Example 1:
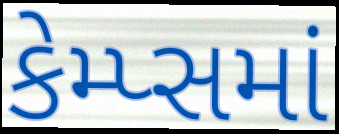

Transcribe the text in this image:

કેમ્પ્સમાં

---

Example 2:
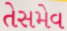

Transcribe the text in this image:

તેસમેવ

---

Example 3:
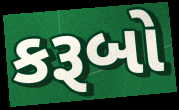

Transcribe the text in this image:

કરૂબો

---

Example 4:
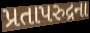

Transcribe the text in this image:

પ્રતાપરુદ્રના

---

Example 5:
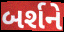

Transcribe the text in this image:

બર્શને